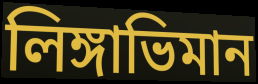
লিঙ্গাভিমান